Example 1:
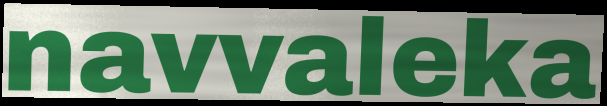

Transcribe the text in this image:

navvaleka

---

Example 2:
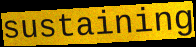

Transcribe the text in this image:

sustaining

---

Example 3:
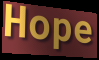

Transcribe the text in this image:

Hope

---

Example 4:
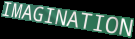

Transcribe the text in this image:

IMAGINATION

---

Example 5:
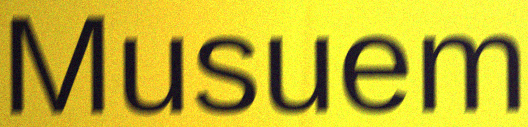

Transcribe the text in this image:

Musuem